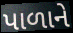
પાળાને